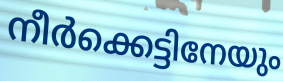
നീർക്കെട്ടിനേയും